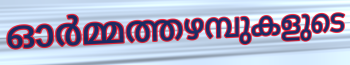
ഓർമ്മത്തഴമ്പുകളുടെ